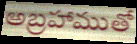
అబ్రహాముతో